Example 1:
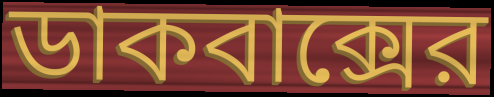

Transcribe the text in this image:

ডাকবাক্সের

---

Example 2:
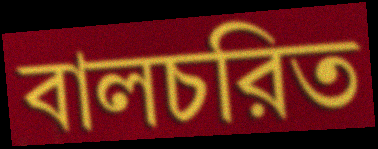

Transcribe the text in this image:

বালচরিত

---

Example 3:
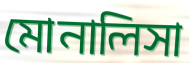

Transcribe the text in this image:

মোনালিসা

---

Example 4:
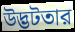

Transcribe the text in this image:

উদ্ভটতার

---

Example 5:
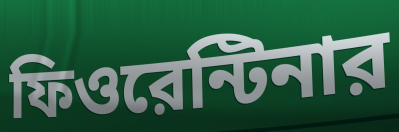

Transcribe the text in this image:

ফিওরেন্টিনার